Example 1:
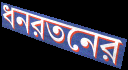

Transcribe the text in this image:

ধনরতনের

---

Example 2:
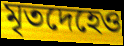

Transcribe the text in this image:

মৃতদেহেও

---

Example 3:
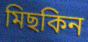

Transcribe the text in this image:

মিছকিন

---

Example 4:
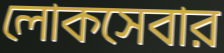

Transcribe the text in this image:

লোকসেবার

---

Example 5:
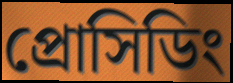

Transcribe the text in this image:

প্রোসিডিং